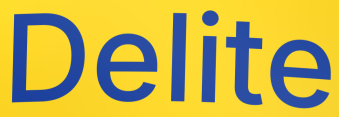
Delite